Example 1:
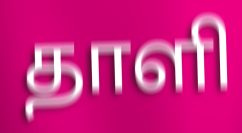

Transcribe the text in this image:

தாளி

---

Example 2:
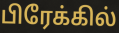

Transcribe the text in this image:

பிரேக்கில்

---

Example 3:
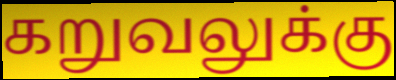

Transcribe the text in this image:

கறுவலுக்கு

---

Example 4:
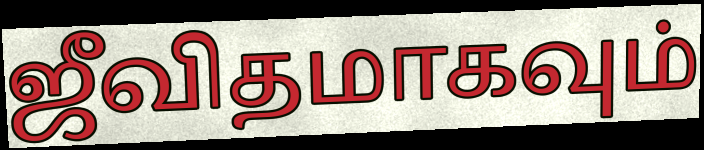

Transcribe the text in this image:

ஜீவிதமாகவும்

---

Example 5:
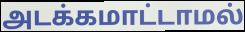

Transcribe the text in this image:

அடக்கமாட்டாமல்